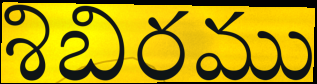
శిబిరము